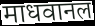
माधवानल